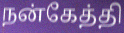
நன்கேத்தி